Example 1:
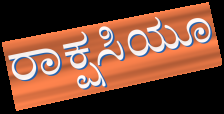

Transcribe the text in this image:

ರಾಕ್ಷಸಿಯೂ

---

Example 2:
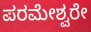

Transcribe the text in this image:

ಪರಮೇಶ್ವರೇ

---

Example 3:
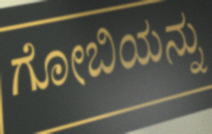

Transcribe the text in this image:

ಗೋಬಿಯನ್ನು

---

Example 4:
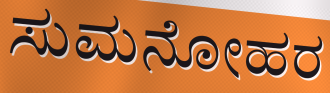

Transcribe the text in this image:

ಸುಮನೋಹರ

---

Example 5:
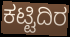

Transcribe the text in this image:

ಕಟ್ಟಿದಿರ